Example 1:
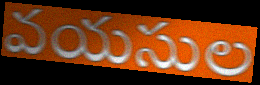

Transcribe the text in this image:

వయసుల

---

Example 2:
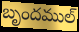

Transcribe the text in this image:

బృందముల్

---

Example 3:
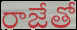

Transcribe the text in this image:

రాజేతో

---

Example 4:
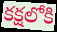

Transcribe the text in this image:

కక్షలోకి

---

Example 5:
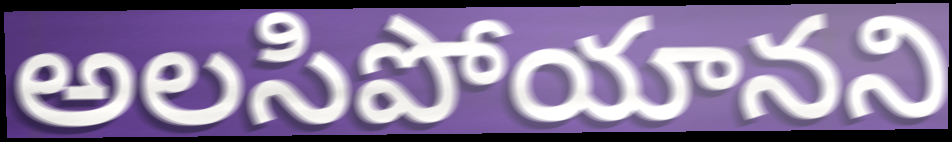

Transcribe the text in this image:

అలసిపోయానని